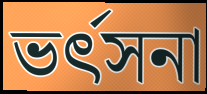
ভর্ৎসনা